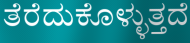
ತೆರೆದುಕೊಳ್ಳುತ್ತದೆ